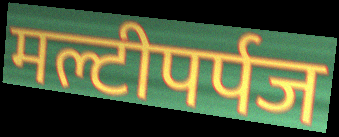
मल्टीपर्पज